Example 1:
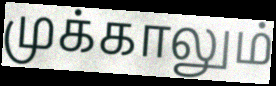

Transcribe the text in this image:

முக்காலும்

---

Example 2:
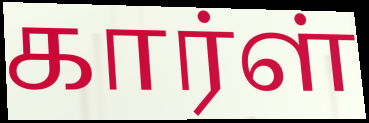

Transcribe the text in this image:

கார்ள்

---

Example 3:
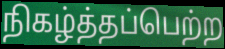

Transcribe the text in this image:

நிகழ்த்தப்பெற்ற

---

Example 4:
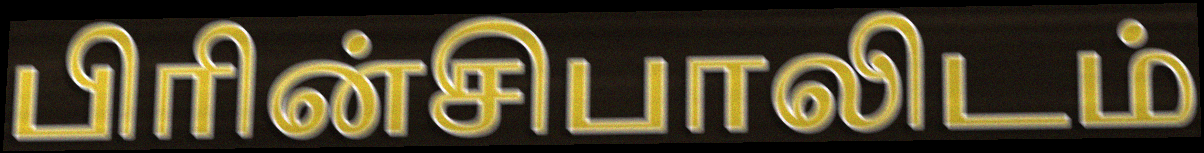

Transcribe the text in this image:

பிரின்சிபாலிடம்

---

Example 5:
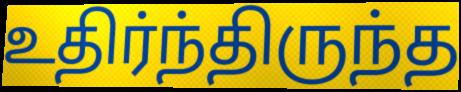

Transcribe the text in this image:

உதிர்ந்திருந்த